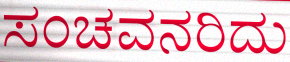
ಸಂಚವನರಿದು